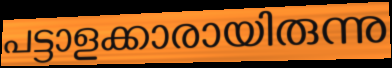
പട്ടാളക്കാരായിരുന്നു